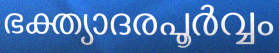
ഭക്ത്യാദരപൂർവ്വം